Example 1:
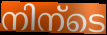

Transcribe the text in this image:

നിന്ടെ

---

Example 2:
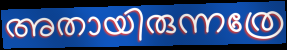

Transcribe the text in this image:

അതായിരുന്നത്രേ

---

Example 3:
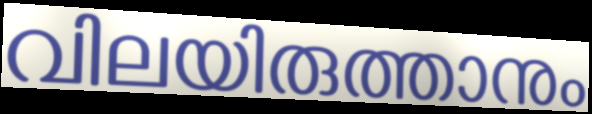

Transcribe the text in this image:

വിലയിരുത്താനും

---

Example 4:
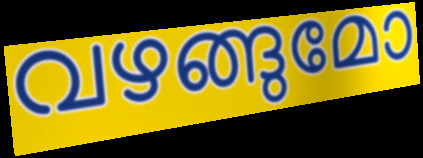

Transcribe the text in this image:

വഴങ്ങുമോ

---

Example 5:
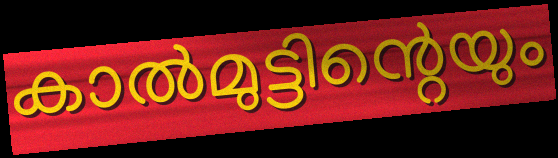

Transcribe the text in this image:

കാൽമുട്ടിന്റെയും